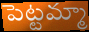
పెట్టమ్మా